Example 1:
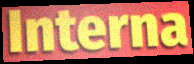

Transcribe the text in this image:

Interna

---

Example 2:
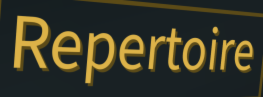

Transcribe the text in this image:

Repertoire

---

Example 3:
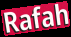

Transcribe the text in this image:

Rafah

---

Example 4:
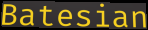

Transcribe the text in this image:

Batesian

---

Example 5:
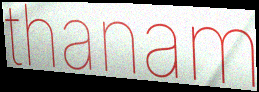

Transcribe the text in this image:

thanam